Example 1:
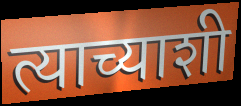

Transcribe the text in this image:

त्याच्याशी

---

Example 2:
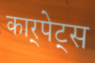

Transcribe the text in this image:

कार्पेट्स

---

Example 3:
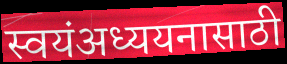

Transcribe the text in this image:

स्वयंअध्ययनासाठी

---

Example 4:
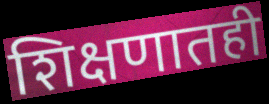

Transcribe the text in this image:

शिक्षणातही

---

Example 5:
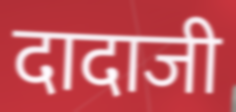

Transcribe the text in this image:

दादाजी